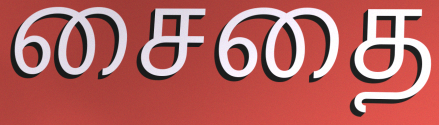
சைதை